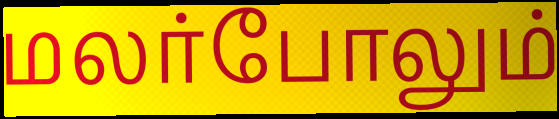
மலர்போலும்